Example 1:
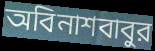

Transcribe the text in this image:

অবিনাশবাবুর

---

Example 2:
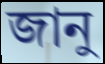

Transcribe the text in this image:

জানু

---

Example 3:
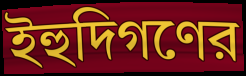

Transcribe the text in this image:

ইহুদিগণের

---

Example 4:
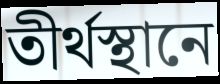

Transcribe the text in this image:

তীর্থস্থানে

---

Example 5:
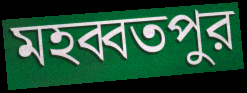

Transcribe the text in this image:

মহব্বতপুর